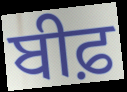
ਬੀਫ਼